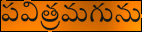
పవిత్రమగును